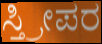
ಸ್ತ್ರೀಪರ